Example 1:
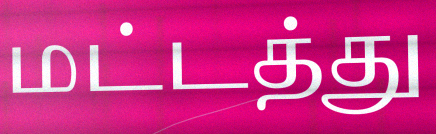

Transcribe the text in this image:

மட்டத்து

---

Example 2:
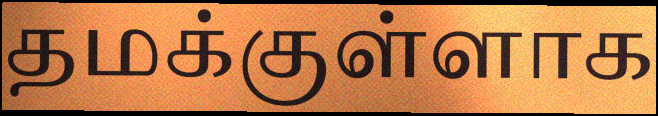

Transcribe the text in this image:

தமக்குள்ளாக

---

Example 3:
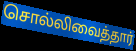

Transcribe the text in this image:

சொல்லிவைத்தார்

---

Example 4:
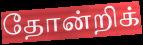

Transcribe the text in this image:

தோன்றிக்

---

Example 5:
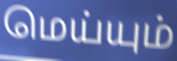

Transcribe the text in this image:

மெய்யும்